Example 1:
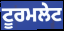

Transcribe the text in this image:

ਟੂਰਮਲੇਟ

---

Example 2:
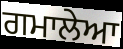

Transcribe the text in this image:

ਗਮਾਲੇਆ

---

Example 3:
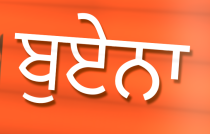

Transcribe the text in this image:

ਬੁਏਨਾ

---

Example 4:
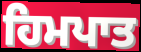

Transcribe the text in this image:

ਹਿਮਪਾਤ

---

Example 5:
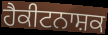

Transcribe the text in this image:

ਹੈਕੀਟਨਾਸ਼ਕ